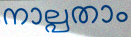
നാല്പതാം